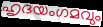
ഹൃദയംഗമവും